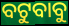
ବଟୁବାବୁ